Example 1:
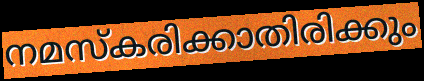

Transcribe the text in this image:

നമസ്കരിക്കാതിരിക്കും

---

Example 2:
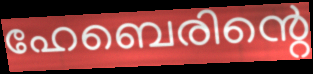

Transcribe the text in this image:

ഹേബെരിന്റെ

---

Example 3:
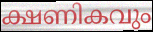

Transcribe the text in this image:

ക്ഷണികവും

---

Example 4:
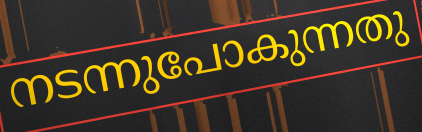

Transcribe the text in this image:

നടന്നുപോകുന്നതു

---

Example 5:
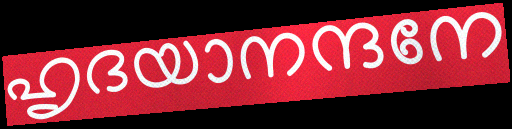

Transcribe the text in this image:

ഹൃദയാനന്ദനേ